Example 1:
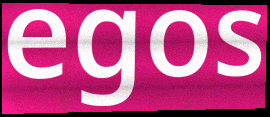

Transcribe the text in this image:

egos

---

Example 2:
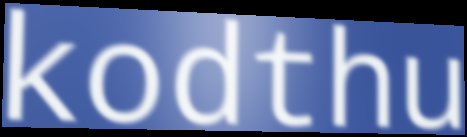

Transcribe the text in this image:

kodthu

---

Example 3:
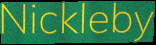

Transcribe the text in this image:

Nickleby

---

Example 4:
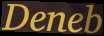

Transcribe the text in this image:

Deneb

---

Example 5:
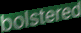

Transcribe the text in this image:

bolstered